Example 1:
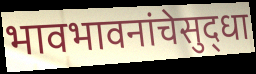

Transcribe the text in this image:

भावभावनांचेसुद्धा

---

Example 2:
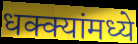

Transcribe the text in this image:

धक्क्यांमध्ये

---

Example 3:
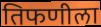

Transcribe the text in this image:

तिफणीला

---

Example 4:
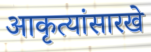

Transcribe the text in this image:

आकृत्यांसारखे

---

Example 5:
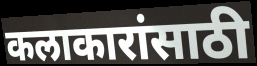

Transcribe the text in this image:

कलाकारांसाठी